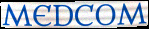
MEDCOM